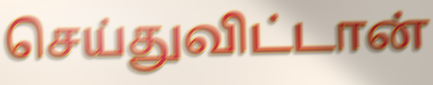
செய்துவிட்டான்